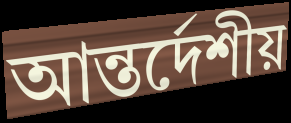
আন্তর্দেশীয়